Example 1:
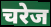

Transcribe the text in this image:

चरेज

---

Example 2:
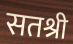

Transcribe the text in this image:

सतश्री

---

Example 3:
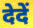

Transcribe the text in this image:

देदें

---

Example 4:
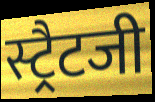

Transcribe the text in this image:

स्‍ट्रैटजी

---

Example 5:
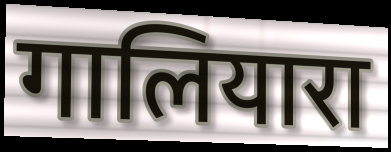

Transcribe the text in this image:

गालियारा